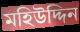
মহিউদ্দিন